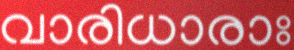
വാരിധാരാഃ